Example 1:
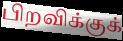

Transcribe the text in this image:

பிறவிக்குக்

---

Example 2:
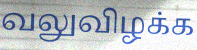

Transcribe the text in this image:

வலுவிழக்க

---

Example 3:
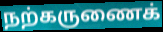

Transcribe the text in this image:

நற்கருணைக்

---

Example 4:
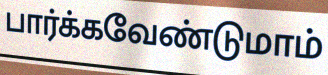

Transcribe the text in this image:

பார்க்கவேண்டுமாம்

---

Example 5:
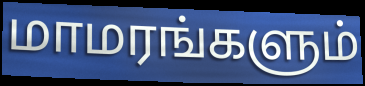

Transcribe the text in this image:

மாமரங்களும்